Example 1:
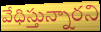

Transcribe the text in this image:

వేధిస్తున్నారని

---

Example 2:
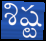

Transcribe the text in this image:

శిష్ట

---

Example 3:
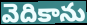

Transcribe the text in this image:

వెదికాను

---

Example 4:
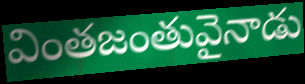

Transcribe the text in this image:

వింతజంతువైనాడు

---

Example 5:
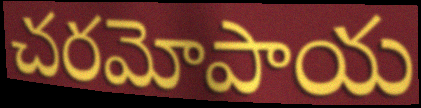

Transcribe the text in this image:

చరమోపాయ